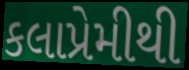
કલાપ્રેમીથી